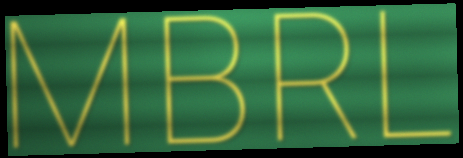
MBRL